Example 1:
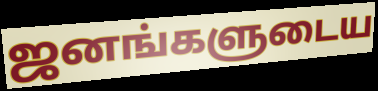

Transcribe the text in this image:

ஜனங்களுடைய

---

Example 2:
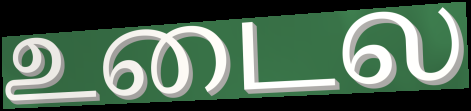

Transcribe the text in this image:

உடைல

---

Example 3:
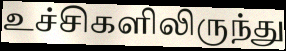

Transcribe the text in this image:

உச்சிகளிலிருந்து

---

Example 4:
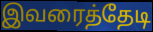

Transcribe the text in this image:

இவரைத்தேடி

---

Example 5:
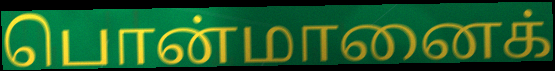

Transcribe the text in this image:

பொன்மானைக்